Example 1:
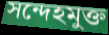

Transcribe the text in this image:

সন্দেহমুক্ত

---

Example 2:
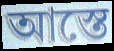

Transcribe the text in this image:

আস্তে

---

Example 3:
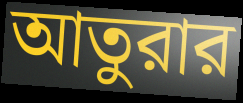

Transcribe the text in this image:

আতুরার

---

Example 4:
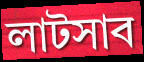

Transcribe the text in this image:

লাটসাব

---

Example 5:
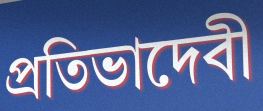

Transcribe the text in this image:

প্রতিভাদেবী